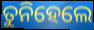
ତୁନିହେଲେ